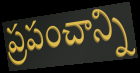
ప్రపంచాన్ని